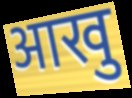
आखु